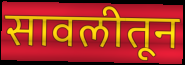
सावलीतून